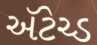
ઍટેચ્ડ